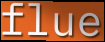
flue